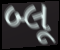
બ્લૂ